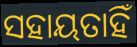
ସହାୟତାହିଁ